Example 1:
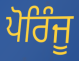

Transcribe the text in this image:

ਪੋਰਿੰਜੂ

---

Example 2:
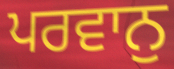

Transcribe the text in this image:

ਪਰਵਾਨੁ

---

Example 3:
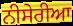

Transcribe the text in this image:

ਨੀਸੇਰੀਆ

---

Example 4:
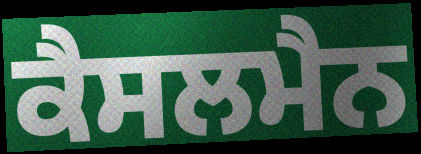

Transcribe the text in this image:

ਕੈਸਲਮੈਨ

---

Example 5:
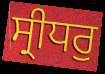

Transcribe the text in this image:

ਸ੍ਰੀਧਰੁ